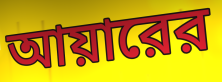
আয়ারের